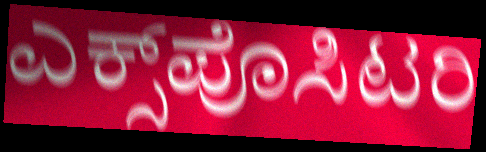
ಎಕ್ಸ್‌ಪೊಸಿಟರಿ